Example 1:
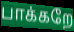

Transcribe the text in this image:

பாக்கறே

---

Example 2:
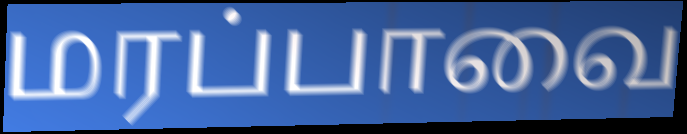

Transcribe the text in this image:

மரப்பாவை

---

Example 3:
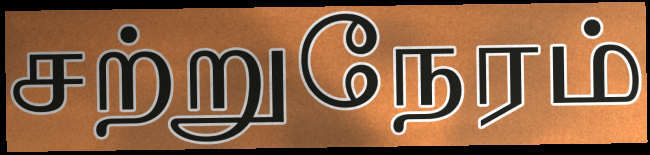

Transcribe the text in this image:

சற்றுநேரம்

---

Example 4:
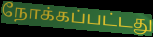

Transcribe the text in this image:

நோக்கப்பட்டது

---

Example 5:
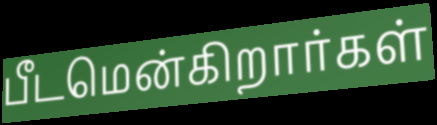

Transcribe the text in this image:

பீடமென்கிறார்கள்